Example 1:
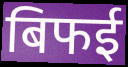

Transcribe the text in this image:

बिफई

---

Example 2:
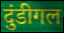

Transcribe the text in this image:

दुंडीगल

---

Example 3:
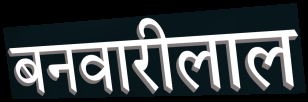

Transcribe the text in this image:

बनवारीलाल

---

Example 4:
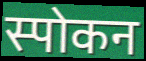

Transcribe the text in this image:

स्पोकन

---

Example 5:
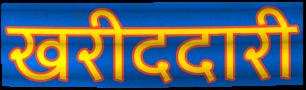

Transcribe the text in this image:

खरीददारी